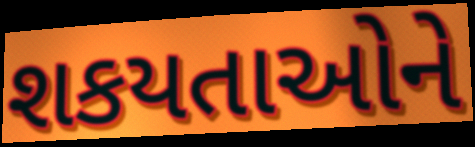
શકયતાઓને